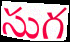
సుగ